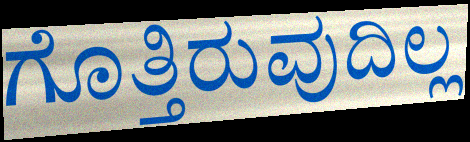
ಗೊತ್ತಿರುವುದಿಲ್ಲ